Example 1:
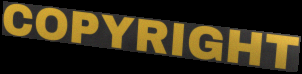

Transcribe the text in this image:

COPYRIGHT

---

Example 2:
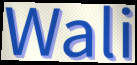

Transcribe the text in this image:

Wali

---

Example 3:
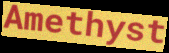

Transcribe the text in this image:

Amethyst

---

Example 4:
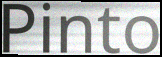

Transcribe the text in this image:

Pinto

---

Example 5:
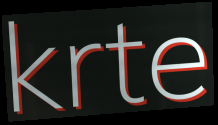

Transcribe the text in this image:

krte